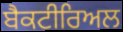
ਬੈਕਟੀਰਿਅਲ